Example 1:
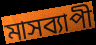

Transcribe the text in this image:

মাসব্যাপী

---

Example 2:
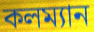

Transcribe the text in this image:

কলম্যান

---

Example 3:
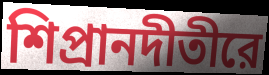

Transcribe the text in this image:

শিপ্রানদীতীরে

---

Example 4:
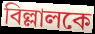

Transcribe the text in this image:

বিল্লালকে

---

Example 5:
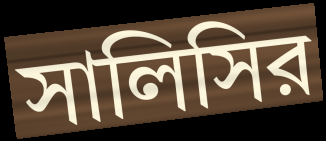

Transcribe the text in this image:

সালিসির